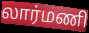
லார்மணி